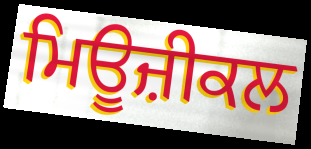
ਮਿਊਜ਼ੀਕਲ